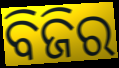
ବିଜିର